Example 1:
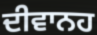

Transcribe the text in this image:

ਦੀਵਾਨਹ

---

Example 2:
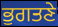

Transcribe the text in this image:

ਭੁਗਤਣੇ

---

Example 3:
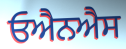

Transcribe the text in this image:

ਓਐਨਐਸ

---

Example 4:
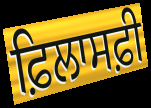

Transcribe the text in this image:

ਫ਼ਿਲਾਸਫ਼ੀ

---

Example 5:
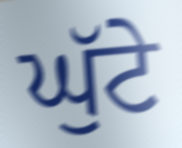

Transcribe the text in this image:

ਘੁੱਟੇ